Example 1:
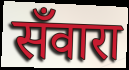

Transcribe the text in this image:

सँवारा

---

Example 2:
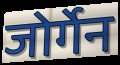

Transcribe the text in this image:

जोर्गेन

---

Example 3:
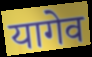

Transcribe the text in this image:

यागेव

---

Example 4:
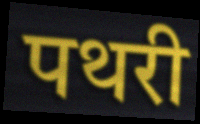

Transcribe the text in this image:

पथरी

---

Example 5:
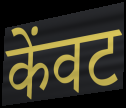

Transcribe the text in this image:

केंवट